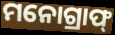
ମନୋଗ୍ରାଫ୍